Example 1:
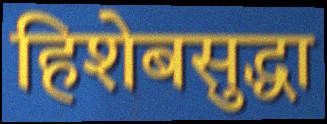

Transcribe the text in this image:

हिशेबसुद्धा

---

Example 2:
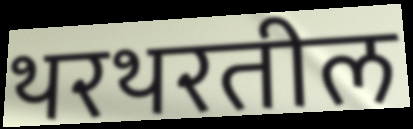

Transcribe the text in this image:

थरथरतील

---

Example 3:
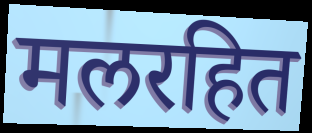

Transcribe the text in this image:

मलरहित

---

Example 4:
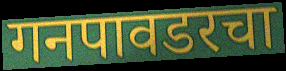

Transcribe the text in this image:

गनपावडरचा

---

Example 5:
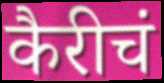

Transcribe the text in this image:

कैरीचं